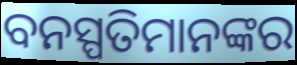
ବନସ୍ପତିମାନଙ୍କର